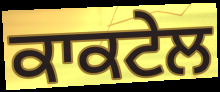
ਕਾਕਟੇਲ